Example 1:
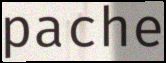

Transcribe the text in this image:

pache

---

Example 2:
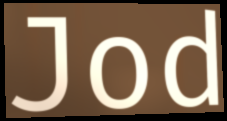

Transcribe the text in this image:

Jod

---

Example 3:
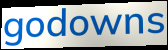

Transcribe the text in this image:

godowns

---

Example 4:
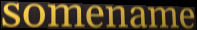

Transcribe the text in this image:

somename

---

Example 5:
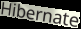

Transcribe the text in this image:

Hibernate